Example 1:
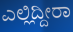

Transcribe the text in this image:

ಎಲ್ಲಿದ್ದೀರಾ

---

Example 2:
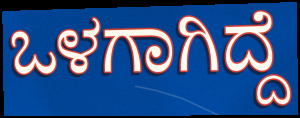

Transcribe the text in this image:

ಒಳಗಾಗಿದ್ದೆ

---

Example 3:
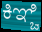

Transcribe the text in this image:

ಕಿಞ್ಚಿ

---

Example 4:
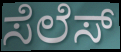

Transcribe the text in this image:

ಸೆಲೆಸ್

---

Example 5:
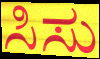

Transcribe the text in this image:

ಸಿಸು